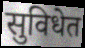
सुविधेत